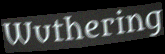
Wuthering